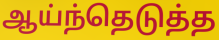
ஆய்ந்தெடுத்த